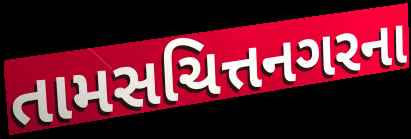
તામસચિત્તનગરના